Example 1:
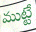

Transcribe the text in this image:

ముట్టే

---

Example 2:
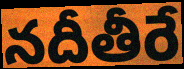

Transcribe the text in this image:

నదీతీరే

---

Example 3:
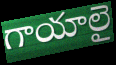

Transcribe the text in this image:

గాయాలై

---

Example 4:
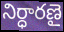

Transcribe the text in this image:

నిర్ధారణై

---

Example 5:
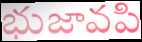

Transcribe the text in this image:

భుజావపి